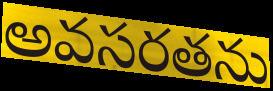
అవసరతను